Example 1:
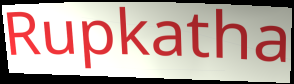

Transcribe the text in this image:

Rupkatha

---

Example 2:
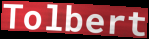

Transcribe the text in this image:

Tolbert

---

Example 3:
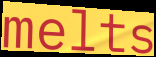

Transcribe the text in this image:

melts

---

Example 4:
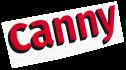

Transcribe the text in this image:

canny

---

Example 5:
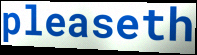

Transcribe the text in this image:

pleaseth